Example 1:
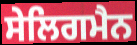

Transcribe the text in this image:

ਸੇਲਿਗਮੈਨ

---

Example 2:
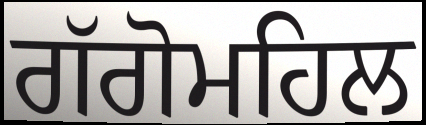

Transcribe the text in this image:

ਗੱਗੋਮਹਿਲ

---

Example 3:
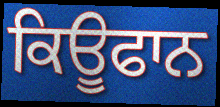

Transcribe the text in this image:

ਕਿਊਫਾਨ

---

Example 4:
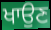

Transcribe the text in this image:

ਖਾਉਣ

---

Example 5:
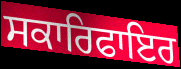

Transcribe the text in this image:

ਸਕਾਰਿਫਾਇਰ